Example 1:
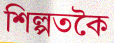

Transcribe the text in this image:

শিল্পতকৈ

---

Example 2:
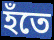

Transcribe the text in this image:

হঁতে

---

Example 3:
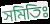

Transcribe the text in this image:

সমিতিঃ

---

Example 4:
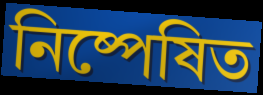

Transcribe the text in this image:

নিষ্পেষিত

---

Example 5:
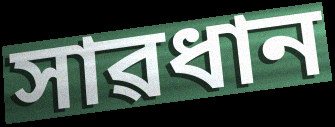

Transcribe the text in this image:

সাৱধান